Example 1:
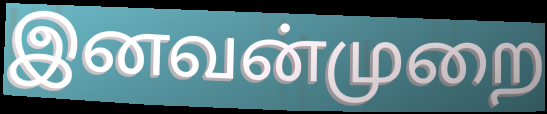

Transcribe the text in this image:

இனவன்முறை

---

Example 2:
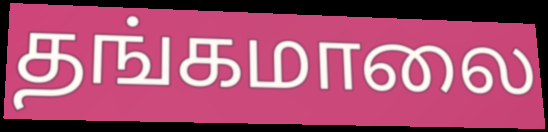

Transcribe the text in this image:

தங்கமாலை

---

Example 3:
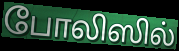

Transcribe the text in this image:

போலிஸில்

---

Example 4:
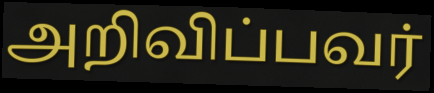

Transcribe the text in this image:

அறிவிப்பவர்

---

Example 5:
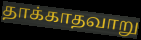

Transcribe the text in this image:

தாக்காதவாறு